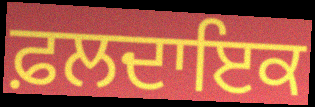
ਫ਼ਲਦਾਇਕ